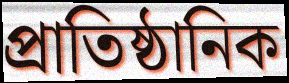
প্রাতিষ্ঠানিক